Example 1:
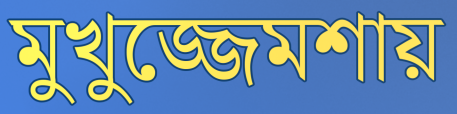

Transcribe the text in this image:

মুখুজ্জেমশায়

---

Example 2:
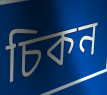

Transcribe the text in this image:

চিকন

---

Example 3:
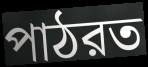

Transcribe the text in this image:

পাঠরত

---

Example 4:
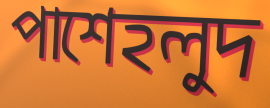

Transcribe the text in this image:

পাশেহলুদ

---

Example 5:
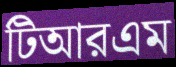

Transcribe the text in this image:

টিআরএম